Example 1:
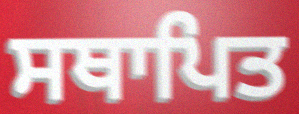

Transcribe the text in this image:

ਸਥਾਪਿਤ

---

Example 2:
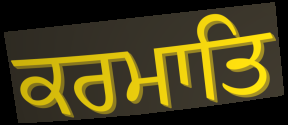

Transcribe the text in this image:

ਕਰਮਾਤਿ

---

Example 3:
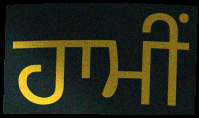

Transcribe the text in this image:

ਹਾਮੀਂ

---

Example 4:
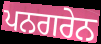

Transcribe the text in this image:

ਪਨਗਰੇਨ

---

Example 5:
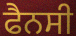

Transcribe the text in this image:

ਫੈਨਸੀ